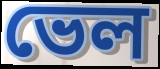
ভেল